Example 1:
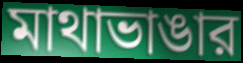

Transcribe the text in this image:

মাথাভাঙার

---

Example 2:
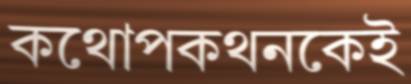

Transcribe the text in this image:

কথোপকথনকেই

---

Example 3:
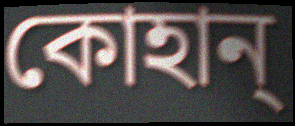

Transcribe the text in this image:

কোহান্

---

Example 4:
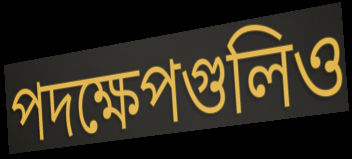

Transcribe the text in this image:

পদক্ষেপগুলিও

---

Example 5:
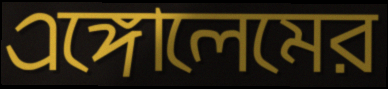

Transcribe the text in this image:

এঙ্গোলেমের